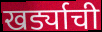
खर्ड्याची